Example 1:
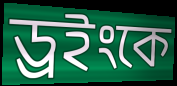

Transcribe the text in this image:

ড্রইংকে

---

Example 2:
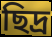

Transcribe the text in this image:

ছিদ্র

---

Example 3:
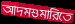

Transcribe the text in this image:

আদমশুমারিতে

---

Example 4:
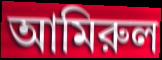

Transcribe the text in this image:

আমিরুল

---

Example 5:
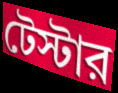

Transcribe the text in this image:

টেস্টার